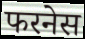
फरनेस